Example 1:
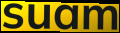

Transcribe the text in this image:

suam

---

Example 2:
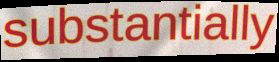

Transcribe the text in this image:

substantially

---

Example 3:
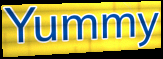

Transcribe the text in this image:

Yummy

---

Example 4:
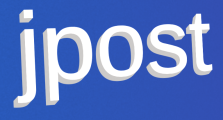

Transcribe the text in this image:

jpost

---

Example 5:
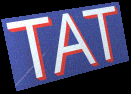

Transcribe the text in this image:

TAT